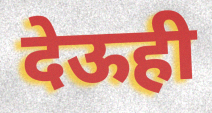
देऊही